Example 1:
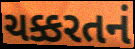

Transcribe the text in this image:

ચક્કરતનં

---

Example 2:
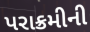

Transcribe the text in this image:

પરાક્રમીની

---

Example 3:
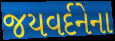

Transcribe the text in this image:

જયવર્દનેના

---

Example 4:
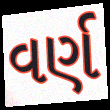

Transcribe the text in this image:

વર્ણ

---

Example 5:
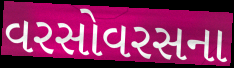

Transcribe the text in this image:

વરસોવરસના